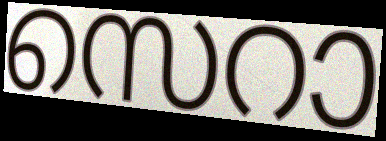
സെറാ